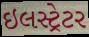
ઇલસ્ટ્રેટર